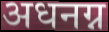
अधनग्न